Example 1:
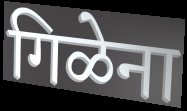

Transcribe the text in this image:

गिळेना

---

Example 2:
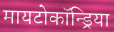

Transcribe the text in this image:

मायटोकॉन्ड्रिया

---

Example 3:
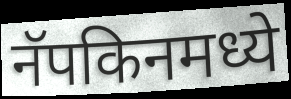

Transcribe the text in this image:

नॅपकिनमध्ये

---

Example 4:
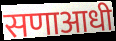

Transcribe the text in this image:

सणाआधी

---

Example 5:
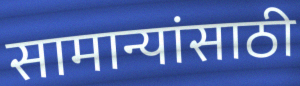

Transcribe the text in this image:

सामान्यांसाठी